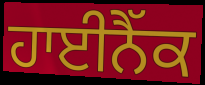
ਹਾਈਨੈੱਕ